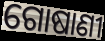
ଗୋଷାଣୀ